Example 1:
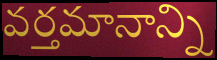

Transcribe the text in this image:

వర్తమానాన్ని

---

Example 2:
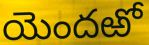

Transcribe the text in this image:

యెందఱో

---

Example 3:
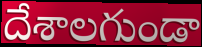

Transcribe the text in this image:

దేశాలగుండా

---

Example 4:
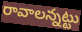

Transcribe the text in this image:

రావాలన్నట్టు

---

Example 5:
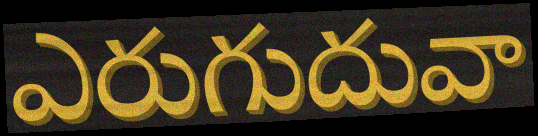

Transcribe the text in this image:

ఎరుగుదువా